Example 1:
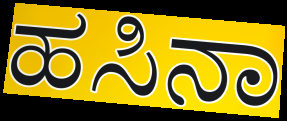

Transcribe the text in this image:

ಹಸಿನಾ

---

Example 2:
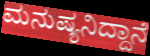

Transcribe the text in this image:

ಮನುಷ್ಯನಿದ್ದಾನೆ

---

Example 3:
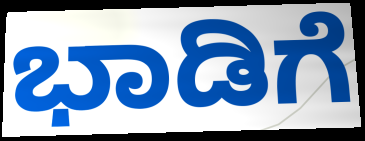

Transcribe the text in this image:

ಭಾಡಿಗೆ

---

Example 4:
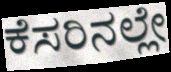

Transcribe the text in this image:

ಕೆಸರಿನಲ್ಲೇ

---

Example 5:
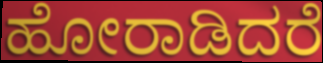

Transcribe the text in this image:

ಹೋರಾಡಿದರೆ